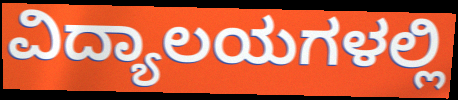
ವಿದ್ಯಾಲಯಗಳಲ್ಲಿ